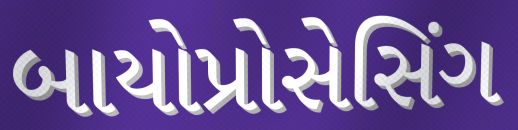
બાયોપ્રોસેસિંગ